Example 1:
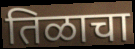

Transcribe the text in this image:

तिळाचा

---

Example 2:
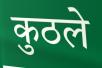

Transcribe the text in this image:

कुठले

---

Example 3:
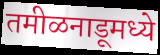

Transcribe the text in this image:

तमीळनाडूमध्ये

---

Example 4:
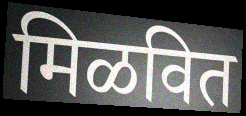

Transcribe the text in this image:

मिळवित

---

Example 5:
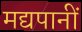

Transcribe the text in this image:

मद्यपानीं